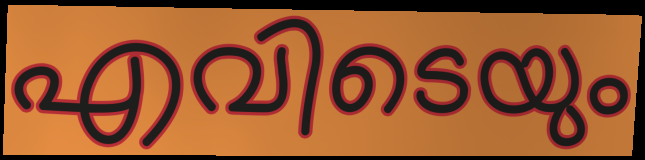
എവിടെയും